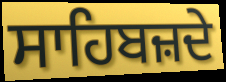
ਸਾਹਿਬਜ਼ਦੇ